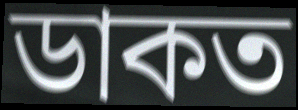
ডাকত